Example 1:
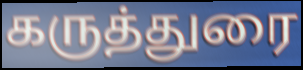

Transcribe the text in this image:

கருத்துரை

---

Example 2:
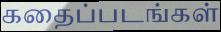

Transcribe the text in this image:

கதைப்படங்கள்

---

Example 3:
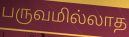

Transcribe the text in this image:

பருவமில்லாத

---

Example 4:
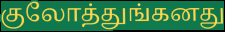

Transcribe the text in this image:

குலோத்துங்கனது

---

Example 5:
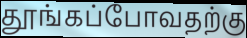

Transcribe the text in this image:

தூங்கப்போவதற்கு